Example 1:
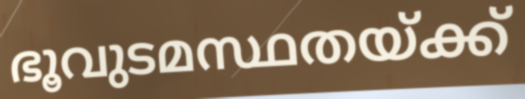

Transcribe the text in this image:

ഭൂവുടമസ്ഥതയ്ക്ക്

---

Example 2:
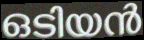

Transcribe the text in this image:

ഒടിയൻ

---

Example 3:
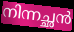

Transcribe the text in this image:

നിന്നച്ഛൻ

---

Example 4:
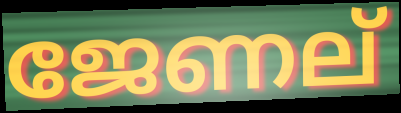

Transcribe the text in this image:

ജേണല്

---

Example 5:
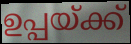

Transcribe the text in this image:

ഉപ്പയ്ക്ക്